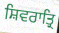
ਸ਼ਿਵਰਾਤ੍ਰਿ